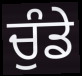
ਚੁੰਡੇ